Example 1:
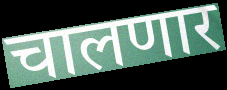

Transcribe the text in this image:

चालणार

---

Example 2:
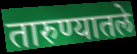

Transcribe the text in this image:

तारुण्यातले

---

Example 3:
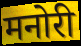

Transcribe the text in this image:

मनोरी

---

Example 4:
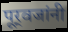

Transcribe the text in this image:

पूर्वजांनी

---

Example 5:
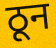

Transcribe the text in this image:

ठून